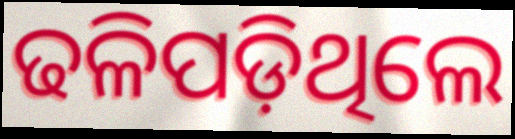
ଢଳିପଡ଼ିଥିଲେ